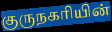
குருநகரியின்